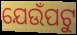
ଯେଉଁପଟୁ